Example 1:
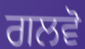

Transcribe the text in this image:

ਗਲਵੋ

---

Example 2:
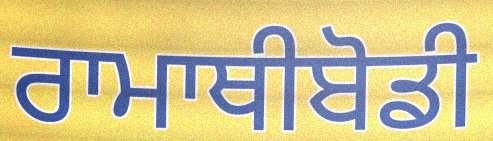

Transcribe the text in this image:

ਰਾਮਾਥੀਬੋਡੀ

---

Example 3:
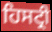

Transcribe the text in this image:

ਹਿਸਟ੍ਰੀ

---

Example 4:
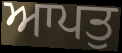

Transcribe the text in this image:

ਆਪਤੁ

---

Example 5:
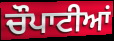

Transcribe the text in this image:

ਚੌਪਾਟੀਆਂ